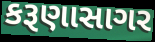
કરૂણાસાગર